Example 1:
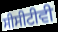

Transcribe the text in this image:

ਸੀਸੀਟੀਵੀ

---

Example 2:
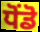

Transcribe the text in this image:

ਧੋਂਡੋ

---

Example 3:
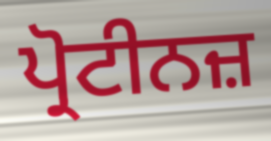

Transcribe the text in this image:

ਪ੍ਰੋਟੀਨਜ਼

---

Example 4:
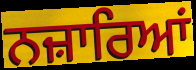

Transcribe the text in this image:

ਨਜ਼ਾਰਿਆਂ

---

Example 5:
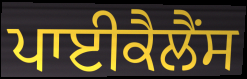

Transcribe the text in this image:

ਪਾਈਕੈਲੈਂਸ